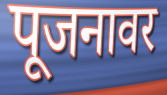
पूजनावर